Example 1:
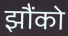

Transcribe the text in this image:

झौंको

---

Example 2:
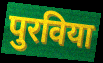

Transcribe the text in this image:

पुरविया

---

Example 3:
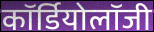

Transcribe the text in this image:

कॉर्डियोलॉजी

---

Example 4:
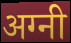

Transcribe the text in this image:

अग्नी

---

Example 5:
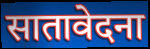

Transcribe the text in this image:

सातावेदना